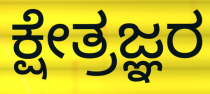
ಕ್ಷೇತ್ರಜ್ಞರ